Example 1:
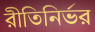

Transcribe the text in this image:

রীতিনির্ভর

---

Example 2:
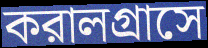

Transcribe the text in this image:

করালগ্রাসে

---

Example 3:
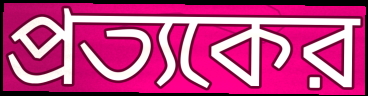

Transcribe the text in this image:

প্রত্যকের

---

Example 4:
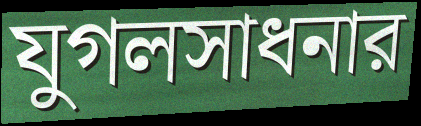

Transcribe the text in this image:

যুগলসাধনার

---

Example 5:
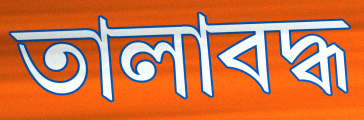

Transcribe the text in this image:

তালাবদ্ধ